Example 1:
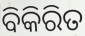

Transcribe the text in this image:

ବିକିରିତ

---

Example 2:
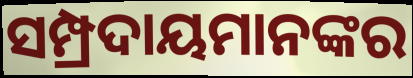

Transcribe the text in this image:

ସମ୍ପ୍ରଦାୟମାନଙ୍କର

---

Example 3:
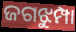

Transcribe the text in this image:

ଜଗଝୁମ୍ପା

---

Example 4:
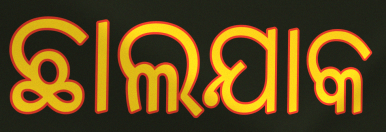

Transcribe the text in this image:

ଛାଲଯାକ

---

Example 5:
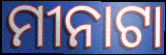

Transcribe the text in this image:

ମୀନାଟା